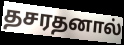
தசரதனால்